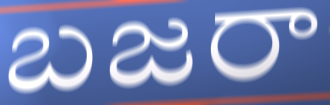
బజరా